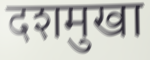
दशमुखा